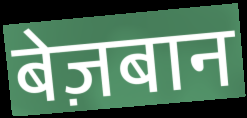
बेज़बान